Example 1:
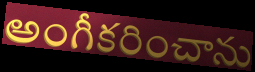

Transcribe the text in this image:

అంగీకరించాను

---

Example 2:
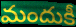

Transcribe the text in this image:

మందుకీ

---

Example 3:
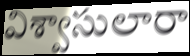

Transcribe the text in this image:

విశ్వాసులారా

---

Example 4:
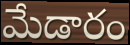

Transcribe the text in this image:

మేడారం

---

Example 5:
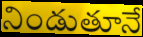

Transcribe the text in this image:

నిండుతూనే